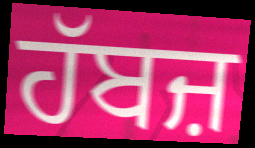
ਹੱਬਜ਼